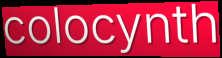
colocynth